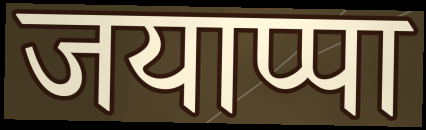
जयाप्पा